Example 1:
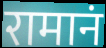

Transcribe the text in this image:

रामानं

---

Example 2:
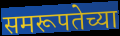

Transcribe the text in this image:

समरूपतेच्या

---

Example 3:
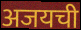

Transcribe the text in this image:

अजयची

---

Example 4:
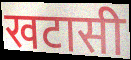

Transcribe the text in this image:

खटासी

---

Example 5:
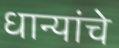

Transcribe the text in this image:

धान्यांचे